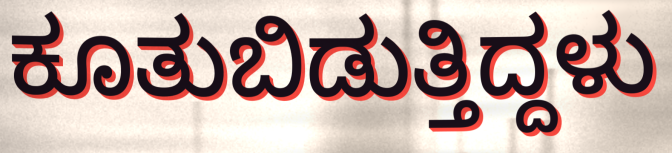
ಕೂತುಬಿಡುತ್ತಿದ್ದಳು